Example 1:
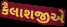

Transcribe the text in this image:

કૈલાશજીએ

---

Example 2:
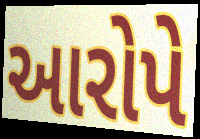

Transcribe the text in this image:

આરોપે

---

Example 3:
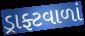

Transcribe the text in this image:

ડ્રાફ્ટવાળાં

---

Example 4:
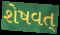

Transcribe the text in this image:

શેષવત્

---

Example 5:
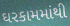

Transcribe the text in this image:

ઘરકામમાંથી